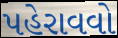
પહેરાવવો